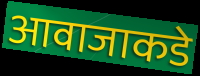
आवाजाकडे